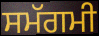
ਸਮੱਗਮੀ